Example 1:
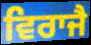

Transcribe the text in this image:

ਵਿਰਾਜੈ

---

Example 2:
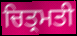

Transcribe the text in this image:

ਚਿਤ੍ਰਮਤੀ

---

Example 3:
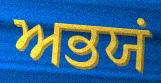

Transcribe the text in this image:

ਅਭਯਂ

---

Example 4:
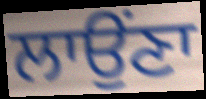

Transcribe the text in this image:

ਲਾਉਂਣਾ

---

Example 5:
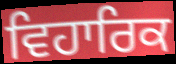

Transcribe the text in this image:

ਵਿਹਾਰਿਕ